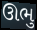
ઊભુ